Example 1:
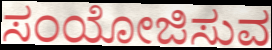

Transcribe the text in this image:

ಸಂಯೋಜಿಸುವ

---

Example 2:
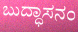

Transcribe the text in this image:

ಬುದ್ಧಾಸನಂ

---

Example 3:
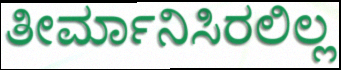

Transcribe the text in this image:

ತೀರ್ಮಾನಿಸಿರಲಿಲ್ಲ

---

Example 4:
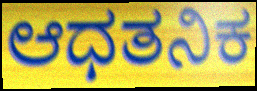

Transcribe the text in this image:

ಆಧತನಿಕ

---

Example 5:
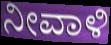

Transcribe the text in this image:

ನೀವಾಳಿ